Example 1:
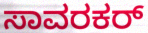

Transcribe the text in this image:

ಸಾವರಕರ್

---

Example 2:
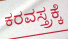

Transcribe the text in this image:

ಕರವಸ್ತ್ರಕ್ಕೆ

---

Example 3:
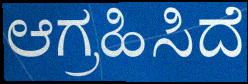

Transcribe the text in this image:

ಆಗ್ರಹಿಸಿದೆ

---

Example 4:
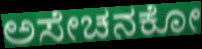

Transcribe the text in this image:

ಅಸೇಚನಕೋ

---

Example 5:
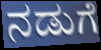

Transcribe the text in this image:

ನಡುಗೆ